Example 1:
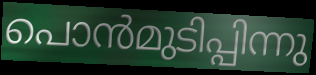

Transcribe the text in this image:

പൊൻമുടിപ്പിന്നു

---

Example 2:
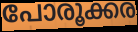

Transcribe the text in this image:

പോരൂക്കര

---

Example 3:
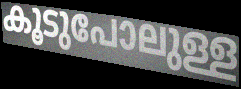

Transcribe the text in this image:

കൂടുപോലുള്ള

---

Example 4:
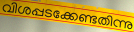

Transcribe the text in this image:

വിശപ്പടക്കേണ്ടതിന്നു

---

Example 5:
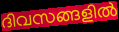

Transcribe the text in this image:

ദിവസങ്ങളിൽ